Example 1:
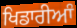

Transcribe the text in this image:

ਖਿਡਾਰੀਆੰ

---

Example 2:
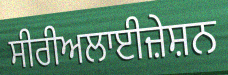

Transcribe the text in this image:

ਸੀਰੀਅਲਾਈਜ਼ੇਸ਼ਨ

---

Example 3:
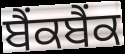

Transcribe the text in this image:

ਬੈਂਕਬੈਂਕ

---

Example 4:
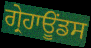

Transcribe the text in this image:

ਗ੍ਰੇਹਾਊਂਡਸ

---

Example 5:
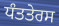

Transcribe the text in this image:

ਧੰਤਤੇਰਸ